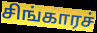
சிங்காரச்